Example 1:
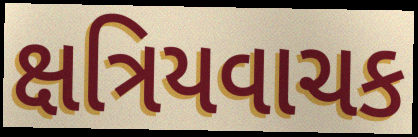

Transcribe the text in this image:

ક્ષત્રિયવાચક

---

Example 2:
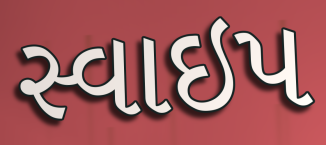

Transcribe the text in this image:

સ્વાઇપ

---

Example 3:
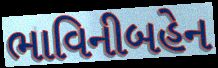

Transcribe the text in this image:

ભાવિનીબહેન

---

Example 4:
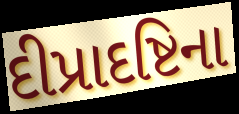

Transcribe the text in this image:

દીપ્રાદષ્ટિના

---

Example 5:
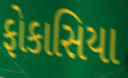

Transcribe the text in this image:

ફોકાસિયા